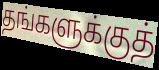
தங்களுக்குத்